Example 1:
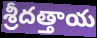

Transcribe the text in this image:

శ్రీదత్తాయ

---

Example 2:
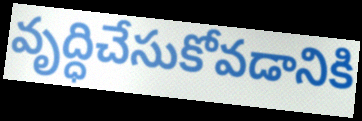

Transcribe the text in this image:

వృద్ధిచేసుకోవడానికి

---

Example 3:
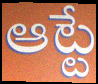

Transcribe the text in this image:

ఆట్టే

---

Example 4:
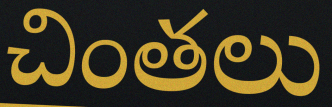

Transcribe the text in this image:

చింతలు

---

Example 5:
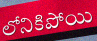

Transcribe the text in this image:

లోనికిపోయి